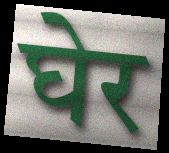
घेर